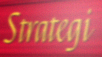
Strategi